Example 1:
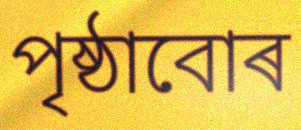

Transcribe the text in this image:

পৃষ্ঠাবোৰ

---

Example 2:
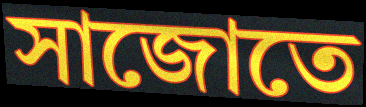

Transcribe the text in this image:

সাজোতে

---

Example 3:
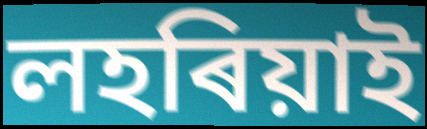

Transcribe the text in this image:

লহৰিয়াই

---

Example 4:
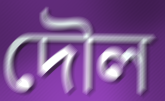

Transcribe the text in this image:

দৌল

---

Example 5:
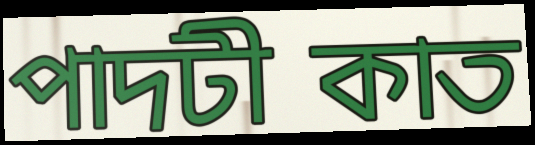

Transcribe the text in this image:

পাদটীকাত